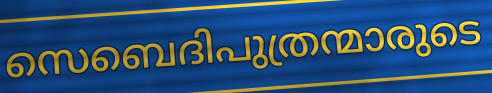
സെബെദിപുത്രന്മാരുടെ